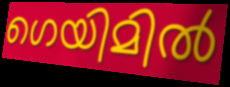
ഗെയിമിൽ